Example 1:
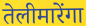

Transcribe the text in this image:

तेलीमारेंगा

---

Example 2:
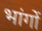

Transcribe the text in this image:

भांगों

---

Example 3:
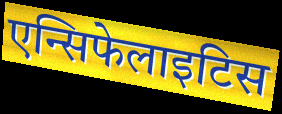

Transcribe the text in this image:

एन्सिफेलाइटिस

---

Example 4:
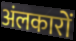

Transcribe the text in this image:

अंलकारों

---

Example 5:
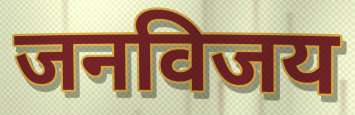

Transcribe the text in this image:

जनविजय